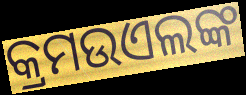
କ୍ରମଉଏଲଙ୍କ